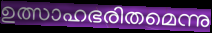
ഉത്സാഹഭരിതമെന്നു